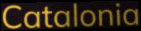
Catalonia